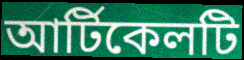
আর্টিকেলটি